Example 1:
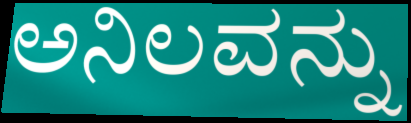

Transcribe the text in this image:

ಅನಿಲವನ್ನು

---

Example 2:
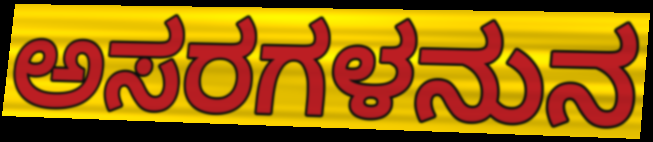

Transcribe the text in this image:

ಅಸರಗಳನುನ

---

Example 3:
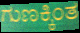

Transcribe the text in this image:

ಗುಣಕ್ಕಿಂತ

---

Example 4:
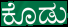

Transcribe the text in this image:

ಕೊಡು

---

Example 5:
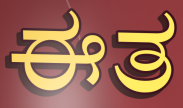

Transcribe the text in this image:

ಈತ